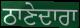
ਠਾਣੇਦਾਰਾ